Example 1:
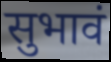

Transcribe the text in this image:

सुभावं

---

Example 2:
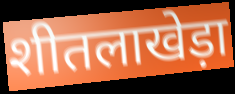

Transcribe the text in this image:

शीतलाखेड़ा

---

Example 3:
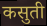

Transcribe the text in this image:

कसुती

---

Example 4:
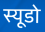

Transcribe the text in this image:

स्यूडो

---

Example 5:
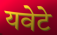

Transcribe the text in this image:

यवेटे